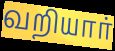
வறியார்